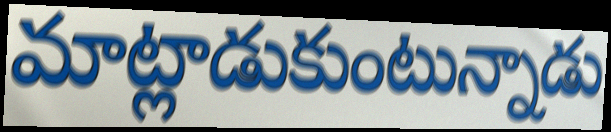
మాట్లాడుకుంటున్నాడు